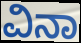
ವಿನಾ